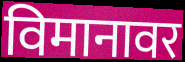
विमानावर